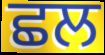
ਛਲ